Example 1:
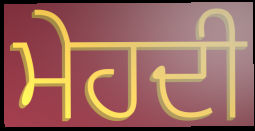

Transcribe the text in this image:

ਮੇਹਦੀ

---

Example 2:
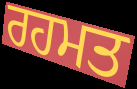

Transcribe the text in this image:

ਰਹਮਤ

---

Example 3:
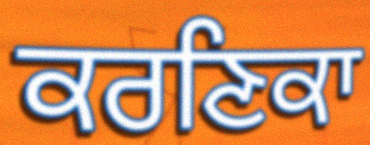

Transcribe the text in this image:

ਕਰਣਿਕਾ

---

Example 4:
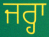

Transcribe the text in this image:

ਜਰ੍ਹਾ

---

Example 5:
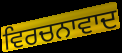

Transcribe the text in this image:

ਵਿਰਚਨਾਵਾਦ